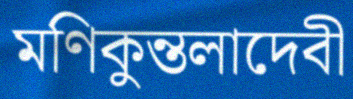
মণিকুন্তলাদেবী